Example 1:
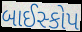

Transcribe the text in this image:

બાઈસ્કોપ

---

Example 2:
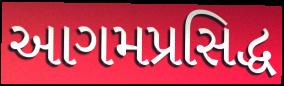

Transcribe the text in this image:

આગમપ્રસિદ્ધ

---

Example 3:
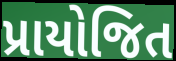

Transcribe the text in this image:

પ્રાયોજિત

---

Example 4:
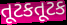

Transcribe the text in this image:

તૂટકતૂટક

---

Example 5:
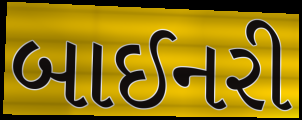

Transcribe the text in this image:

બાઈનરી